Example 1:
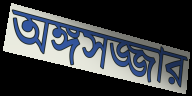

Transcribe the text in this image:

অঙ্গসজ্জার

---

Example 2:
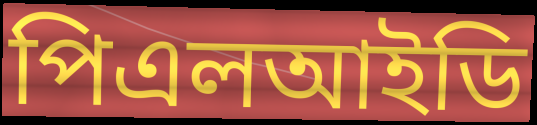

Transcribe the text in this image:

পিএলআইডি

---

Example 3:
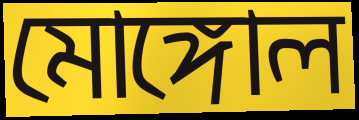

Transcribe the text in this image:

মোঙ্গোল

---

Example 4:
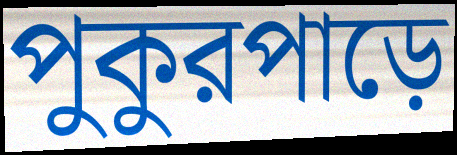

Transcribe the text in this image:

পুকুরপাড়ে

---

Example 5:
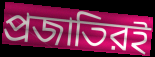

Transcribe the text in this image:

প্রজাতিরই